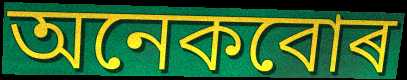
অনেকবোৰ